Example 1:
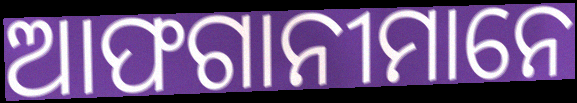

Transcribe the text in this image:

ଆଫଗାନୀମାନେ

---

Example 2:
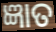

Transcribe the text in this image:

ଜ୍ଞାତ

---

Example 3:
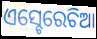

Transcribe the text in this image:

ଏସ୍ଚେରେଚିଆ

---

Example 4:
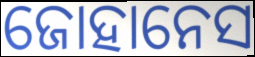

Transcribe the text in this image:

ଜୋହାନେସ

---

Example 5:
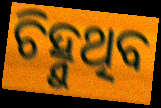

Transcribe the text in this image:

ଚିହ୍ନୁଥିବ